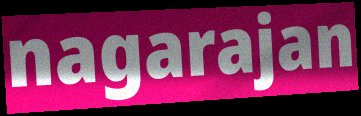
nagarajan